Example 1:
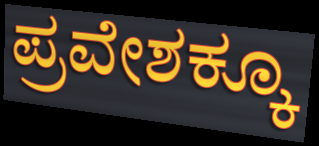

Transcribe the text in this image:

ಪ್ರವೇಶಕ್ಕೂ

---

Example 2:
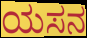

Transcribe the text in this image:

ಯಸನ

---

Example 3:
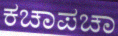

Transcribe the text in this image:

ಕಚಾಪಚಾ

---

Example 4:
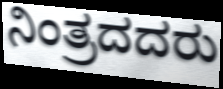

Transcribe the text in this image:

ನಿಂತ್ರದದರು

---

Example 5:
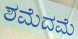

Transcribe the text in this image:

ಶಮೆದಮೆ